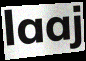
laaj